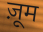
ज़ूम